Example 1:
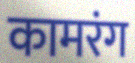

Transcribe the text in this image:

कामरंग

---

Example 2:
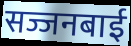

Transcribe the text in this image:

सज्जनबाई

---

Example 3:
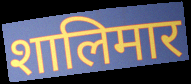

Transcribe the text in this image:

शालिमार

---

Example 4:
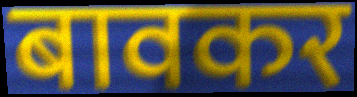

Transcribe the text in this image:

बावकर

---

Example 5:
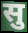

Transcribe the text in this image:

सु